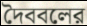
দৈববলের